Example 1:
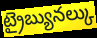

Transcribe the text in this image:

ట్రైబ్యునల్కు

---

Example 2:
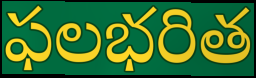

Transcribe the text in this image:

ఫలభరిత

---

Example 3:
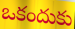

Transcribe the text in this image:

ఒకందుకు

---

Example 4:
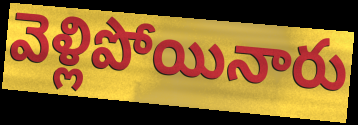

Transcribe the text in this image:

వెళ్లిపోయినారు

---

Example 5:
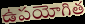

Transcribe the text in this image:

ఉపయోగిత